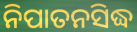
ନିପାତନସିଦ୍ଧ